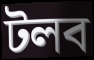
টলব